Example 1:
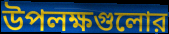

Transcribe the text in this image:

উপলক্ষগুলোর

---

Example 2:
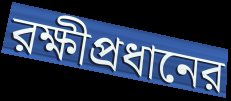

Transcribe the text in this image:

রক্ষীপ্রধানের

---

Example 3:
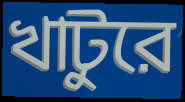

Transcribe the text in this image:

খাটুরে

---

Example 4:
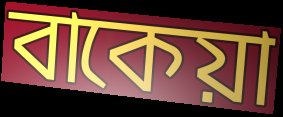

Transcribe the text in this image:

বাকেয়া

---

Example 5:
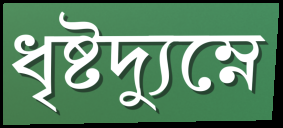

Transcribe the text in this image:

ধৃষ্টদ্যুম্নে